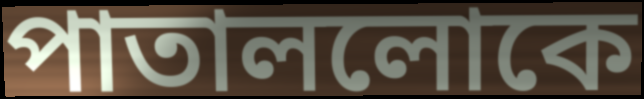
পাতাললোকে